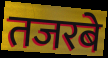
तजरबे